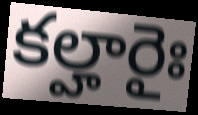
కల్హారైః